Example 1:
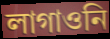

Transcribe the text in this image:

লাগাওনি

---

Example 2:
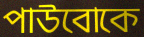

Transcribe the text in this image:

পাউবোকে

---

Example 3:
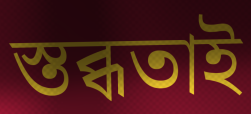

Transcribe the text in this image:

স্তব্ধতাই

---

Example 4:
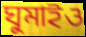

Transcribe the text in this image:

ঘুমাইও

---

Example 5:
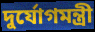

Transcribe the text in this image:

দুর্যোগমন্ত্রী